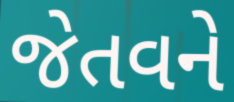
જેતવને